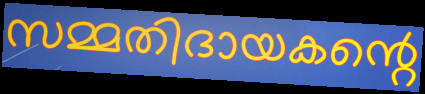
സമ്മതിദായകന്റെ